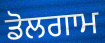
ਡੋਲਗਾਮ